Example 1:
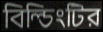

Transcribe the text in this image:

বিল্ডিংটির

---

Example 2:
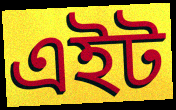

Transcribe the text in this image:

এইট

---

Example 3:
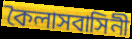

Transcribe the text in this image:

কৈলাসবাসিনী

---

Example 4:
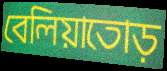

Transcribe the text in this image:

বেলিয়াতোড়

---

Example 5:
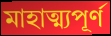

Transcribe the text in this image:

মাহাত্ম্যপূর্ণ